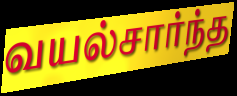
வயல்சார்ந்த